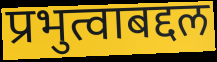
प्रभुत्वाबद्दल